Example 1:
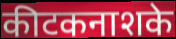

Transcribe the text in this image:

कीटकनाशके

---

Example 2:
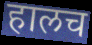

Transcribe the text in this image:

हालच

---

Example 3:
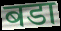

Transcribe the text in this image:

बडा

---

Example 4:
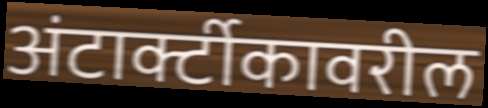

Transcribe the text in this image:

अंटार्क्टीकावरील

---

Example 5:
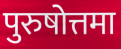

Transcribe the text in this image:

पुरुषोत्तमा